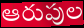
ఆరుపుల